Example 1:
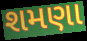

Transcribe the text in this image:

શમણા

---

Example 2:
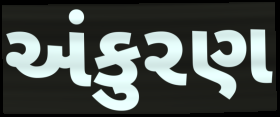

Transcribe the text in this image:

અંકુરણ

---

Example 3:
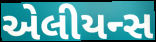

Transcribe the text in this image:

એલીયન્સ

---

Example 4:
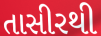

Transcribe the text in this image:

તાસીરથી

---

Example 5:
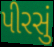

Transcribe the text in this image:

પીરસું